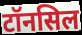
टॉनसिल